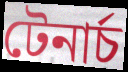
টেনাৰ্চ